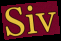
Siv